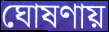
ঘোষণায়